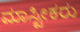
ಮಾಸ್ಟೀಕರು